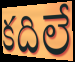
కదిలే